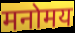
मनोमय